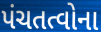
પંચતત્વોના